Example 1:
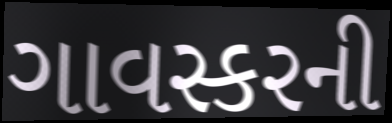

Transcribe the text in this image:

ગાવસ્કરની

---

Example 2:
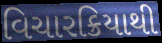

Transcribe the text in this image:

વિચારક્રિયાથી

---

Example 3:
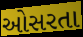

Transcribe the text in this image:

ઓસરતા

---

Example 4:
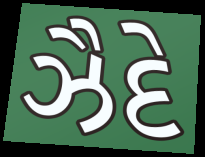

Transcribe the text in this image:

ઝૈદે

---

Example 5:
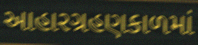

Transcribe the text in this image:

આહારગ્રહણકાળમાં